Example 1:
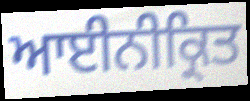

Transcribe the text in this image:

ਆਈਨੀਕ੍ਰਿਤ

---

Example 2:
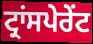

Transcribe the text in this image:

ਟ੍ਰਾਂਸਪੇਰੇਂਟ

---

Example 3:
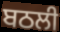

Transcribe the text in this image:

ਬਠਲੀ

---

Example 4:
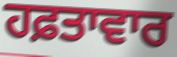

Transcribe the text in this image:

ਹਫ਼ਤਾਵਾਰ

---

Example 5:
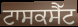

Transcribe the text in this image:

ਟਾਸਕਸੈੱਟ